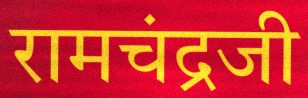
रामचंद्रजी